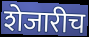
शेजारीच